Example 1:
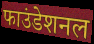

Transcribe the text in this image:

फाउंडेशनल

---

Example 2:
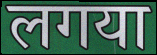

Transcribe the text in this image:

लगया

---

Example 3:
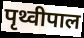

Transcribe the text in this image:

पृथ्वीपाल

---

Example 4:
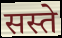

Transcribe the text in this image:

सस्‍ते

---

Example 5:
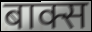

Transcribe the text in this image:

बाक्स